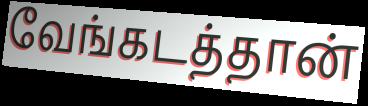
வேங்கடத்தான்